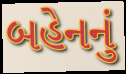
બહેનનું